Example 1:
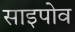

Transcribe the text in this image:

साइपोव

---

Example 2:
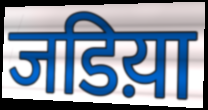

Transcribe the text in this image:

जडिय़ा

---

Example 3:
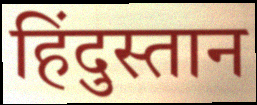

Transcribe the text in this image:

हिंदुस्तान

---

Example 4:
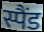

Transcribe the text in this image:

स्पैंड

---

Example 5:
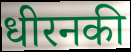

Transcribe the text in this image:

धीरनकी